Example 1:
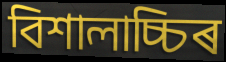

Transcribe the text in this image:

বিশালাচ্চিৰ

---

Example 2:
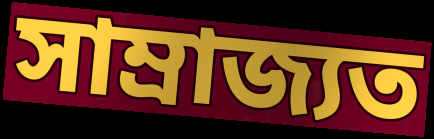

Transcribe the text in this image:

সাম্ৰাজ্যত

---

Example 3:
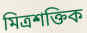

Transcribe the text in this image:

মিত্ৰশক্তিক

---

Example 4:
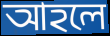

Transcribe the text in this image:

আহলে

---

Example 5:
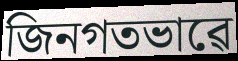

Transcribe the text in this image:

জিনগতভাৱে